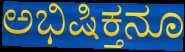
ಅಭಿಷಿಕ್ತನೂ